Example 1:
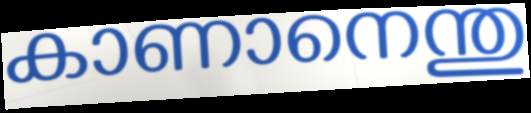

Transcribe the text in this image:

കാണാനെന്തു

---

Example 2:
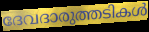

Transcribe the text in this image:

ദേവദാരുത്തടികൾ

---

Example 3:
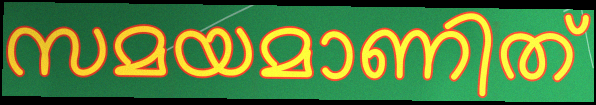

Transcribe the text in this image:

സമയമാണിത്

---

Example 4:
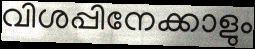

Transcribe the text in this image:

വിശപ്പിനേക്കാളും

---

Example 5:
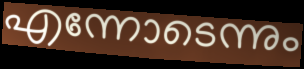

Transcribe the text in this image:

എന്നോടെന്നും